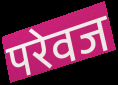
परेवज